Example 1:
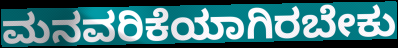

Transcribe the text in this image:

ಮನವರಿಕೆಯಾಗಿರಬೇಕು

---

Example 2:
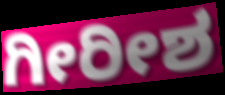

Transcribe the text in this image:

ಗೀರೀಶ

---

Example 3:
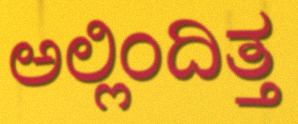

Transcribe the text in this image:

ಅಲ್ಲಿಂದಿತ್ತ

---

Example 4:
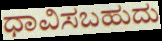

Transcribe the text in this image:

ಧಾವಿಸಬಹುದು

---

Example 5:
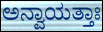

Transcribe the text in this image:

ಅನ್ವಾಯತ್ತಾಃ